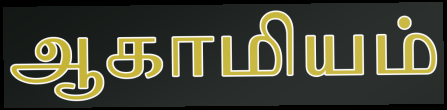
ஆகாமியம்